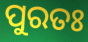
ପୁରତଃ